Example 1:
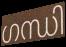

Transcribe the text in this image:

ഗന്ധി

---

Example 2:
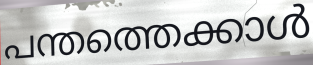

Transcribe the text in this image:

പന്തത്തെക്കാൾ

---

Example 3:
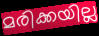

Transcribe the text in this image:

മരിക്കയില്ല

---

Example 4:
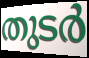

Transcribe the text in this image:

തുടർ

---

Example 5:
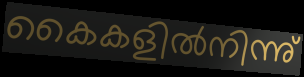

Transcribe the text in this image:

കൈകളിൽനിന്നു്